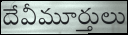
దేవీమూర్తులు